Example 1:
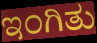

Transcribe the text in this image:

ಇಂಗಿತು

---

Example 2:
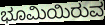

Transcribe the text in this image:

ಭೂಮಿಯಿರುವ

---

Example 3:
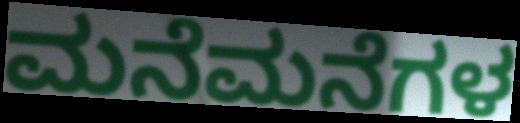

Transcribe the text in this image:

ಮನೆಮನೆಗಳ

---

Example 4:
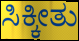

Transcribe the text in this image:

ಸಿಕ್ಕೀತು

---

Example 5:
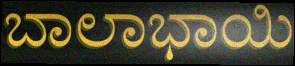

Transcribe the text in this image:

ಬಾಲಾಭಾಯಿ